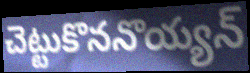
చెట్టుకొననొయ్యన్